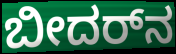
ಬೀದರ್‌ನ